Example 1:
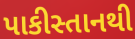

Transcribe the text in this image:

પાકીસ્તાનથી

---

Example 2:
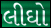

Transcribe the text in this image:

લીઘો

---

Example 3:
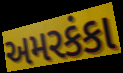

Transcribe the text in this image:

અમરકંકા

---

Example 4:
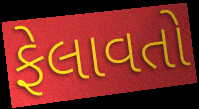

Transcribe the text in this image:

ફેલાવતો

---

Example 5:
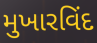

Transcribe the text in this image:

મુખારવિંદ